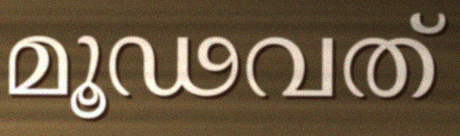
മൂഢവത്